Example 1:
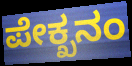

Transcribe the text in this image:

ಪೇಕ್ಖನಂ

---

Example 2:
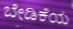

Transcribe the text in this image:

ಬೇಡಿಕೆಯ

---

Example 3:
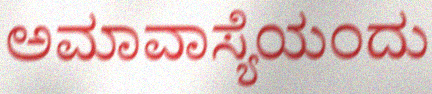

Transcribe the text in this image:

ಅಮಾವಾಸ್ಯೆಯಂದು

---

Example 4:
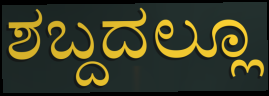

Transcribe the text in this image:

ಶಬ್ದದಲ್ಲೂ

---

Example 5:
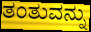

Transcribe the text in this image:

ತಂತುವನ್ನು